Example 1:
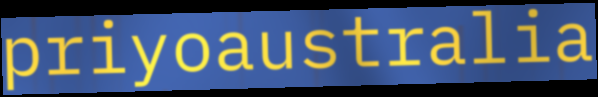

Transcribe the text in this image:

priyoaustralia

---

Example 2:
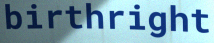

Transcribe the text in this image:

birthright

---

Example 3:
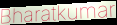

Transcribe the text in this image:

Bharatkumar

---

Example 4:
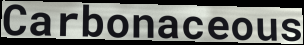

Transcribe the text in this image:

Carbonaceous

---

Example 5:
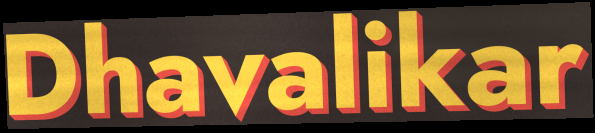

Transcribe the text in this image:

Dhavalikar